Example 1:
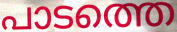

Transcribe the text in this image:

പാടത്തെ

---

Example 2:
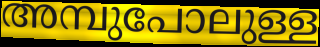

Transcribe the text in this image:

അമ്പുപോലുള്ള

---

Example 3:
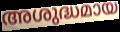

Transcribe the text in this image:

അശുദ്ധമായ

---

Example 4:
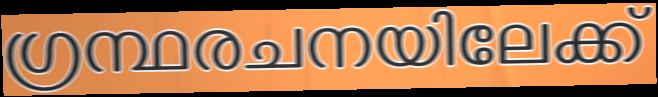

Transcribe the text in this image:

ഗ്രന്ഥരചനയിലേക്ക്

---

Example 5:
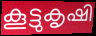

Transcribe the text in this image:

കൂട്ടുകൃഷി